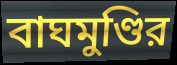
বাঘমুণ্ডির